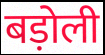
बड़ोली